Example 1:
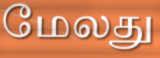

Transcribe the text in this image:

மேலது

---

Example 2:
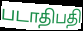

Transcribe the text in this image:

படாதிபதி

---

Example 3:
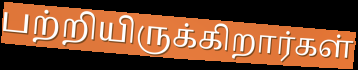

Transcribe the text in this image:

பற்றியிருக்கிறார்கள்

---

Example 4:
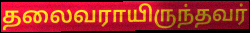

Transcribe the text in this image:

தலைவராயிருந்தவர்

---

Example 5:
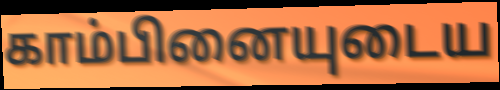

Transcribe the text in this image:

காம்பினையுடைய